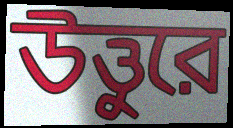
উত্তুরে